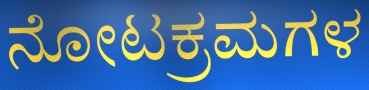
ನೋಟಕ್ರಮಗಳ